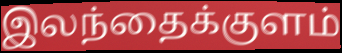
இலந்தைக்குளம்